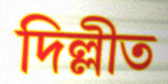
দিল্লীত